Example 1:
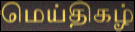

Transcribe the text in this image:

மெய்திகழ்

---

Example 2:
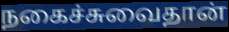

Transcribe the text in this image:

நகைச்சுவைதான்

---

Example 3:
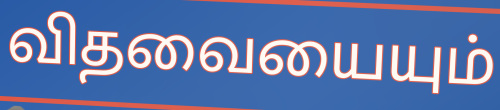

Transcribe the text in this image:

விதவையையும்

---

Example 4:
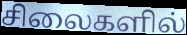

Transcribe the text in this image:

சிலைகளில்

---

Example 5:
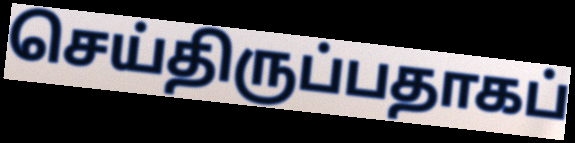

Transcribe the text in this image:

செய்திருப்பதாகப்